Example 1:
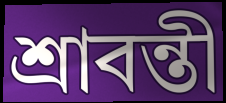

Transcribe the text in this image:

শ্রাবন্তী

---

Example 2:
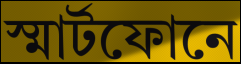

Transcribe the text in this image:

স্মার্টফোনে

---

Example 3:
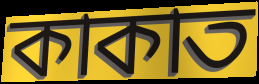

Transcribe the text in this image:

কাকাত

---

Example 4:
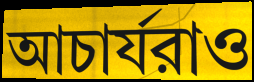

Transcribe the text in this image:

আচার্যরাও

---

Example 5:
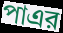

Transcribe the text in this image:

পাএর